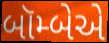
બૉમ્બેએ